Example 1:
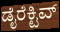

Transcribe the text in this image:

ಡೈರೆಕ್ಟಿವ್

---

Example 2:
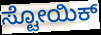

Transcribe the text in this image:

ಸ್ಟೋಯಿಕ್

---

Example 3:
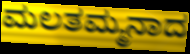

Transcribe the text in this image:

ಮಲತಮ್ಮನಾದ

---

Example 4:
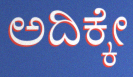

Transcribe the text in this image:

ಅದಿಕ್ಕೇ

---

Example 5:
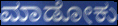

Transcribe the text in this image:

ಮಾಡೋಕು